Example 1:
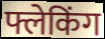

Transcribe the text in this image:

फ्लेकिंग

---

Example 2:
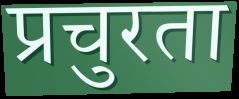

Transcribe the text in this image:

प्रचुरता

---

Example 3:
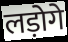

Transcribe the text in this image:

लड़ोगे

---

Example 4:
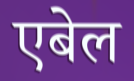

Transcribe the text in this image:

एबेल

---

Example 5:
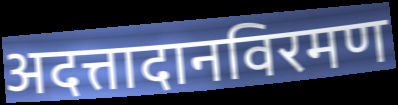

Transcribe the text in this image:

अदत्तादानविरमण